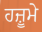
ਹਜ਼ੂਮੇ